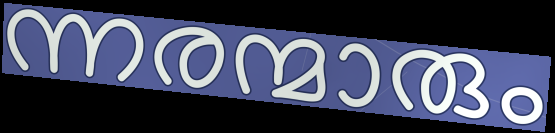
ന്നരന്മാരും